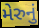
મેરુનું